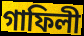
গাফিলী